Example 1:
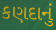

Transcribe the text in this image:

કણદાનું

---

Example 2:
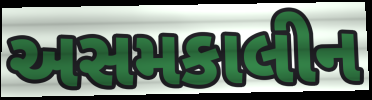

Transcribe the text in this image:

અસમકાલીન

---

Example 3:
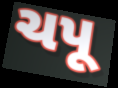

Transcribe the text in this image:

ચપૂ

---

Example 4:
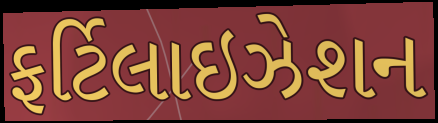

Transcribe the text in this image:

ફર્ટિલાઇઝેશન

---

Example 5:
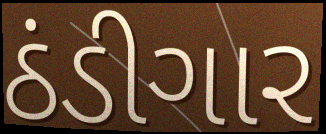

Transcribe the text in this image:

ઠંડીગાર